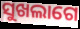
ସୁଖଲାଗେ